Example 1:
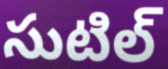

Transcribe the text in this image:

సుటిల్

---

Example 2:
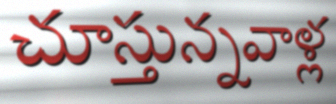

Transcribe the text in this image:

చూస్తున్నవాళ్ల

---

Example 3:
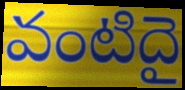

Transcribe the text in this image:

వంటిదై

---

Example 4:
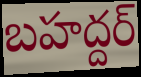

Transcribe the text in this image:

బహద్దర్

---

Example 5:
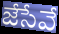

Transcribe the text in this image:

జేసేవే